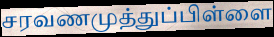
சரவணமுத்துப்பிள்ளை